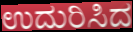
ಉದುರಿಸಿದ